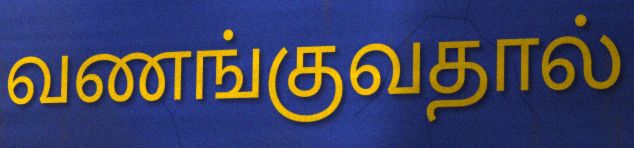
வணங்குவதால்